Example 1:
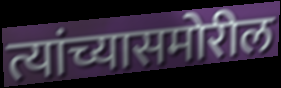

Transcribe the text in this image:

त्यांच्यासमोरील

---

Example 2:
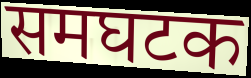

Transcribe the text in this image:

समघटक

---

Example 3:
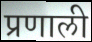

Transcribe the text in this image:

प्रणाली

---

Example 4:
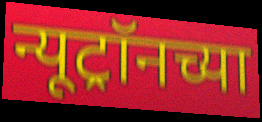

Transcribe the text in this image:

न्यूट्रॉनच्या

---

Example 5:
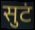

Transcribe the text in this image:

सुटं